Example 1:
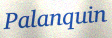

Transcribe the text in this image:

Palanquin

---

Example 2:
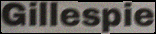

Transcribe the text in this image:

Gillespie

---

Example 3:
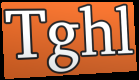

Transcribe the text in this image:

Tghl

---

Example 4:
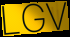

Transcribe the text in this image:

LGV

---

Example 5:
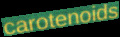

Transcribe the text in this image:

carotenoids